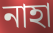
নাহা